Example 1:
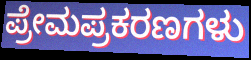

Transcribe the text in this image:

ಪ್ರೇಮಪ್ರಕರಣಗಳು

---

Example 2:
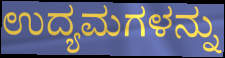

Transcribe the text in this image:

ಉದ್ಯಮಗಳನ್ನು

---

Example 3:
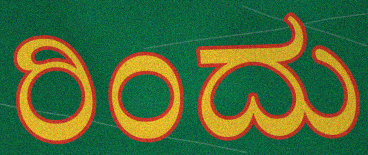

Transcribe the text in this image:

ರಿಂದು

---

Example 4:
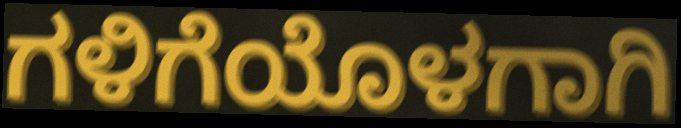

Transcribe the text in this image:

ಗಳಿಗೆಯೊಳಗಾಗಿ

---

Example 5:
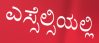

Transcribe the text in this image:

ಎಸ್ಸೆಲ್ಸಿಯಲ್ಲಿ